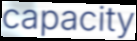
capacity